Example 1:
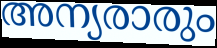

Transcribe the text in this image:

അന്യരാരും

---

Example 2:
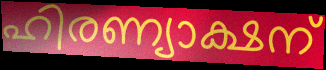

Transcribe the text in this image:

ഹിരണ്യാക്ഷന്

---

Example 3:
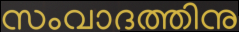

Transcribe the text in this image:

സംവാദത്തിനു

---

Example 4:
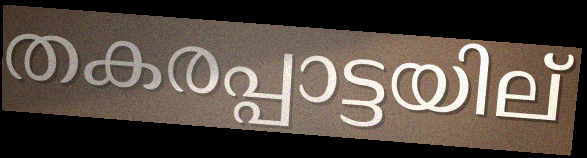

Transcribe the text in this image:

തകരപ്പാട്ടയില്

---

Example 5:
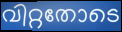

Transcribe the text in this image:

വിറ്റതോടെ